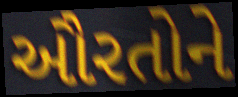
ઔરતોને